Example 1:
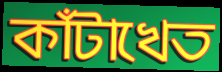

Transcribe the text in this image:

কাঁটাখেত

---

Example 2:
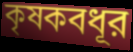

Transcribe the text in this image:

কৃষকবধূর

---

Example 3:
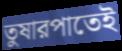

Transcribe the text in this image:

তুষারপাতেই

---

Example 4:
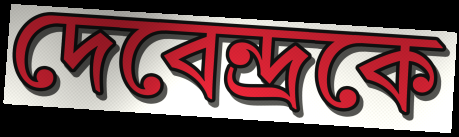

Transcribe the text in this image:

দেবেন্দ্রকে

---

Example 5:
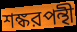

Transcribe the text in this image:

শঙ্করপন্থী